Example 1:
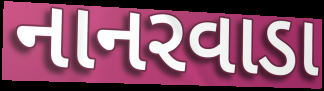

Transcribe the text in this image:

નાનરવાડા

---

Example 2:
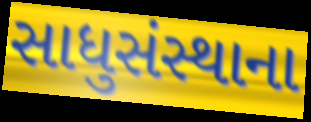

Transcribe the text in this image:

સાધુસંસ્થાના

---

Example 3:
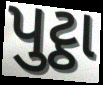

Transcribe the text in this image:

પુટ્ઠા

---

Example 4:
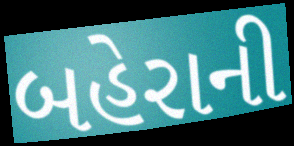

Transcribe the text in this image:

બહેરાની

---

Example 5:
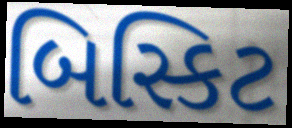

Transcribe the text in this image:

બિસ્કિટ